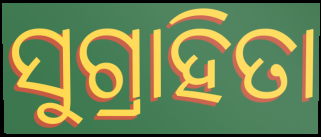
ସୁଗ୍ରାହିତା